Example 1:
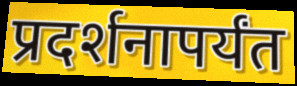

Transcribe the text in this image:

प्रदर्शनापर्यंत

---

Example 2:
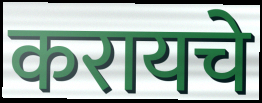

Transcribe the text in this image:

करायचे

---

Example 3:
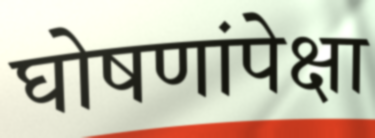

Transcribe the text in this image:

घोषणांपेक्षा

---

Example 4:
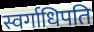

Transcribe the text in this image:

स्वर्गाधिपति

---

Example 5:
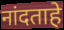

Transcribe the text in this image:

नांदताहे